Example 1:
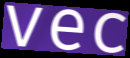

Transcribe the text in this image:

vec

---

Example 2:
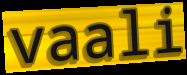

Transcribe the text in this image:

vaali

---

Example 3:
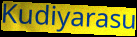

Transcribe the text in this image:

Kudiyarasu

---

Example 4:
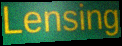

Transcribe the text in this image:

Lensing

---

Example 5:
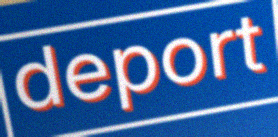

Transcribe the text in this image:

deport